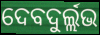
ଦେବଦୁର୍ଲ୍ଲଭ